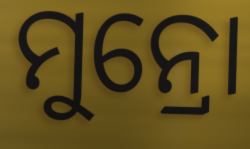
ମୁନ୍ରୋ